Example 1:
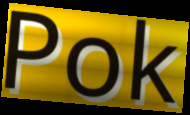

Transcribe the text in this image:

Pok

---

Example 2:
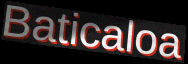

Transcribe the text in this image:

Baticaloa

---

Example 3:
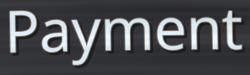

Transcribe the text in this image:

Payment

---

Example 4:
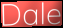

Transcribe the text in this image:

Dale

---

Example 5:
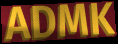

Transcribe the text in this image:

ADMK